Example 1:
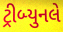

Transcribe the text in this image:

ટ્રીબ્યુનલે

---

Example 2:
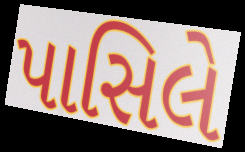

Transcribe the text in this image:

પાસિલે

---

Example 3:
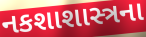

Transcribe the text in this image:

નકશાશાસ્ત્રના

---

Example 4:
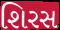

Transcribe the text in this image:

શિરસ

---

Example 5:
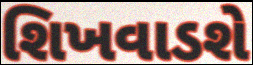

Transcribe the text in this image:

શિખવાડશે